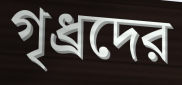
গৃধ্রদের